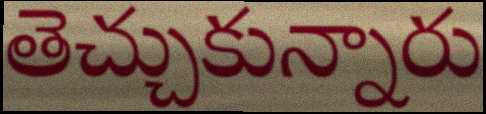
తెచ్చుకున్నారు